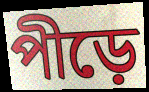
পীড়ে